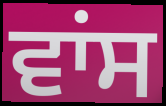
ਵਾਂਸ